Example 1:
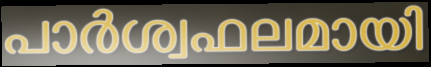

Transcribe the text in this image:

പാർശ്വഫലമായി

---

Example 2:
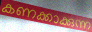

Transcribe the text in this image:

കണക്കാക്കുന്ന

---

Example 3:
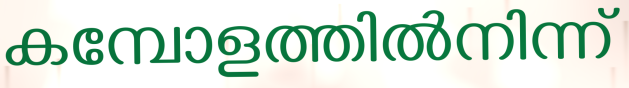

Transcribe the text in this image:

കമ്പോളത്തിൽനിന്ന്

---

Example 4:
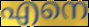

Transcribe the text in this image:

എനെ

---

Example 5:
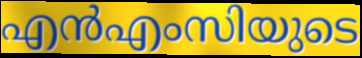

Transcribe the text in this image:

എൻഎംസിയുടെ